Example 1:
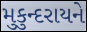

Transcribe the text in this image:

મુકુન્દરાયને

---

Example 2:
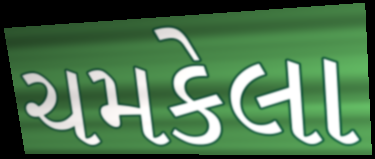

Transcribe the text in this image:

ચમકેલા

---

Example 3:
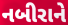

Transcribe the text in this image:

નબીરાને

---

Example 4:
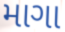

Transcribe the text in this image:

માગા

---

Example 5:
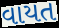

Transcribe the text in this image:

વાયત